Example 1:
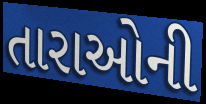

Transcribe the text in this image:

તારાઓની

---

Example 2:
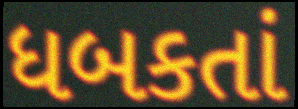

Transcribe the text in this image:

ધબકતાં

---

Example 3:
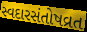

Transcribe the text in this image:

સ્વદારસંતોષવ્રત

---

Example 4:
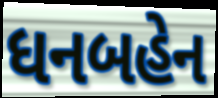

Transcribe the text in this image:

ધનબહેન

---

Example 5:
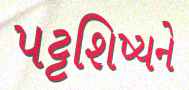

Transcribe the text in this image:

પટ્ટશિષ્યને